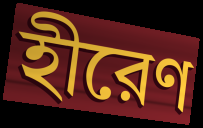
হীরেণ